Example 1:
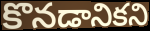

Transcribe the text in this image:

కొనడానికని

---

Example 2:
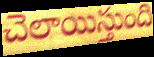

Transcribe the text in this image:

చెలాయిస్తుంది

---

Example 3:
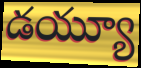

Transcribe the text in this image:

డయ్యూ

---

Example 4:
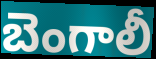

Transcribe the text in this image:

బెంగాలీ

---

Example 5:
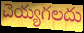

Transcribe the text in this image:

చెయ్యగలదు